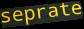
seprate